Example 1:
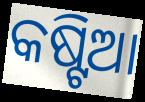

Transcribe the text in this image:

କଷ୍ଟିଆ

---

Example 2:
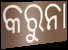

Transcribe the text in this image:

କରୁନା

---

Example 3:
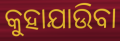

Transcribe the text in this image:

କୁହାଯାଉିବା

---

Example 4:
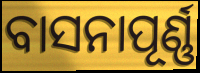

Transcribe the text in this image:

ବାସନାପୂର୍ଣ୍ଣ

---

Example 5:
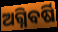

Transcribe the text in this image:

ଅଗ୍ନିବର୍ଷି